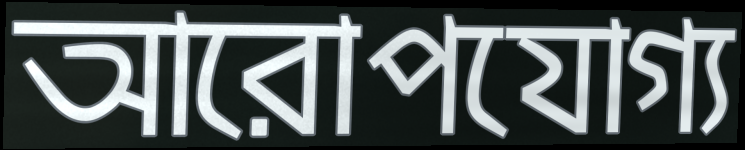
আরোপযোগ্য